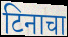
टिनाचा